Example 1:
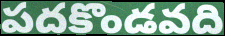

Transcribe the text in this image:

పదకొండవది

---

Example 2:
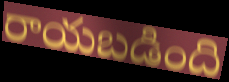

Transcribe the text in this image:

రాయబడింది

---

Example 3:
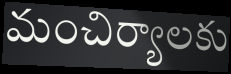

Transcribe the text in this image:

మంచిర్యాలకు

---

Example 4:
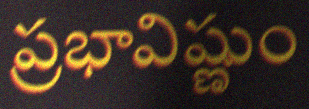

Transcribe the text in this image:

ప్రభావిష్ణుం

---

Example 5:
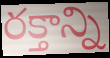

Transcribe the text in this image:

రక్తాన్ని